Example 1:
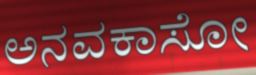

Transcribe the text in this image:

ಅನವಕಾಸೋ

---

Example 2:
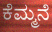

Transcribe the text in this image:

ಕೆಮ್ಮನೆ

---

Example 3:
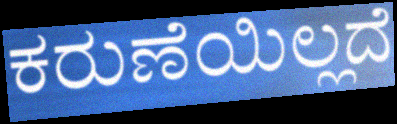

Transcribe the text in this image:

ಕರುಣೆಯಿಲ್ಲದೆ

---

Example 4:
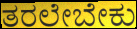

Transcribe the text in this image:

ತರಲೇಬೇಕು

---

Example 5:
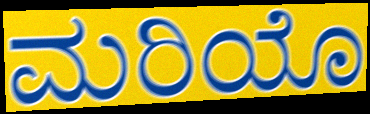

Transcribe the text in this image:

ಮರಿಯೊ